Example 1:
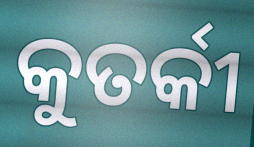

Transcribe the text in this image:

କୁତର୍କୀ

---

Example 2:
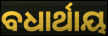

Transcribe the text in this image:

ବଧାର୍ଥାୟ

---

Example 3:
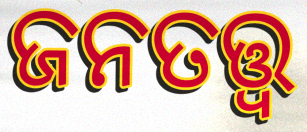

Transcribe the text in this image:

ଜନତତ୍ତ୍ୱ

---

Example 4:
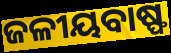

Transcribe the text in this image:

ଜଳୀୟବାଷ୍ଫ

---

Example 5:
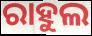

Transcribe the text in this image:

ରାହୁଲ